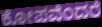
ಕೋಪವೆಂದರೆ